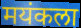
मयंकला